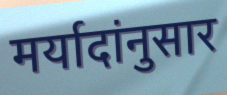
मर्यादांनुसार